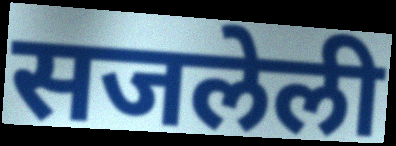
सजलेली